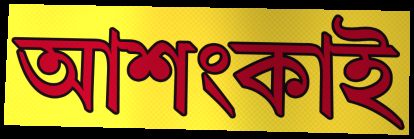
আশংকাই